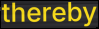
thereby